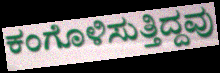
ಕಂಗೊಳಿಸುತ್ತಿದ್ದವು